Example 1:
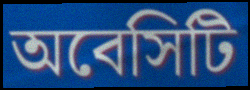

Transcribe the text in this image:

অবেসিটি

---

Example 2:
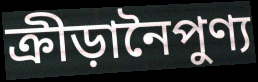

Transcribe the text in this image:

ক্রীড়ানৈপুণ্য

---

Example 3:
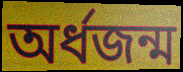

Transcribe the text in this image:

অর্ধজন্ম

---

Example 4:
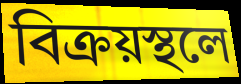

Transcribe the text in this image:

বিক্রয়স্থলে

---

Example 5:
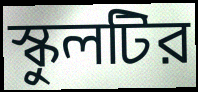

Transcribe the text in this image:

স্কুলটির